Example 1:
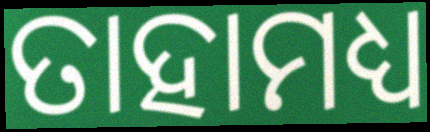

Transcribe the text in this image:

ତାହାମଧ୍ୟ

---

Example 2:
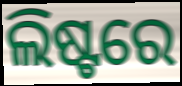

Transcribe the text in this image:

ଲିଷ୍ଟରେ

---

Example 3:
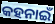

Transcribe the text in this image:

କହନାଇଁ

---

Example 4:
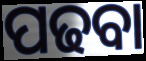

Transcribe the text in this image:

ପଢବା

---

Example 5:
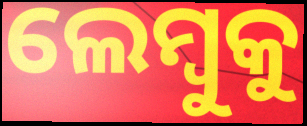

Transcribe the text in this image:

ଲେମ୍ବୁକୁ